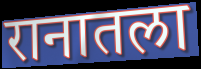
रानातला